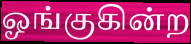
ஓங்குகின்ற